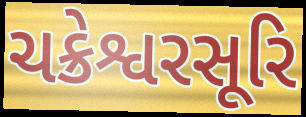
ચક્રેશ્વરસૂરિ